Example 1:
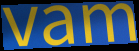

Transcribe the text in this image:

vam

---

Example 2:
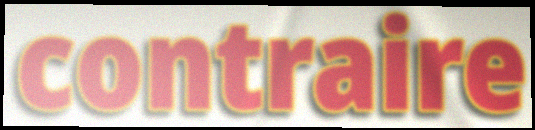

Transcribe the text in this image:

contraire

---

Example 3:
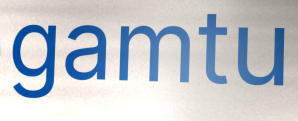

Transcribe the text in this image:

gamtu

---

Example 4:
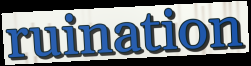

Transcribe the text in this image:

ruination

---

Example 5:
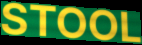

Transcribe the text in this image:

STOOL